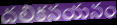
దలికనయనం